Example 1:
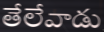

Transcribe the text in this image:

తేలేవాడు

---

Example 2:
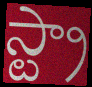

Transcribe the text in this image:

స్ట్రా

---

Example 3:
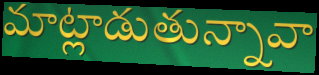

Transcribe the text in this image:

మాట్లాడుతున్నావా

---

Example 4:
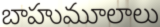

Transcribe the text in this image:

బాహుమూలాలు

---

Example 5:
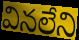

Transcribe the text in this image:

వినలేని